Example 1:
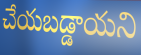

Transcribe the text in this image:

చేయబడ్డాయని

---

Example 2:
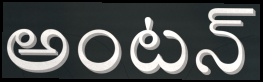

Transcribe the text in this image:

అంటన్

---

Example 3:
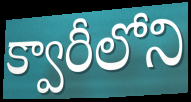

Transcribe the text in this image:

క్వారీలోని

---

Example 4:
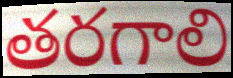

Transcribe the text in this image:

తరగాలి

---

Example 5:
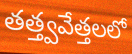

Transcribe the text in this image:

తత్త్వవేత్తలలో